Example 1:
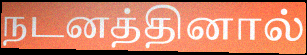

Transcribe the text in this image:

நடனத்தினால்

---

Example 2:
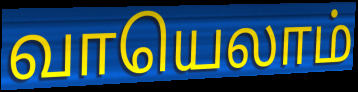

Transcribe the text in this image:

வாயெலாம்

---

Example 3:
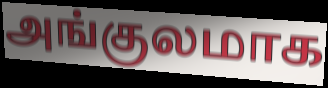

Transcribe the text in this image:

அங்குலமாக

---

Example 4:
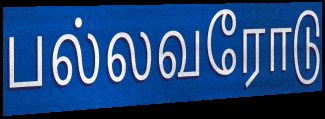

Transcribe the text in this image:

பல்லவரோடு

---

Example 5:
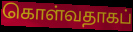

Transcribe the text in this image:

கொள்வதாகப்